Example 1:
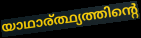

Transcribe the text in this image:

യാഥാര്ത്ഥ്യത്തിന്റെ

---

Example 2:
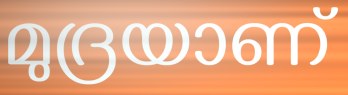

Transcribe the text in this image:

മുദ്രയാണ്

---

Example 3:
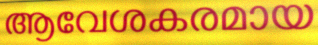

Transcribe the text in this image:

ആവേശകരമായ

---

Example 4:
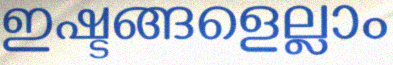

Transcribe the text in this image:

ഇഷ്ടങ്ങളെല്ലാം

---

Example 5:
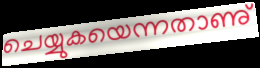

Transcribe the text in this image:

ചെയ്യുകയെന്നതാണു്